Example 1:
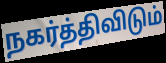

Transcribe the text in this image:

நகர்த்திவிடும்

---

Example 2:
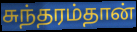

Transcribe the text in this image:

சுந்தரம்தான்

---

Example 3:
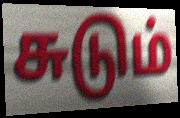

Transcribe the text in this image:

சுடும்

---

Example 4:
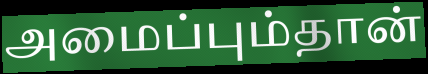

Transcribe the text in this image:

அமைப்பும்தான்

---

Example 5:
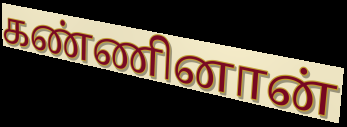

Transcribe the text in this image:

கண்ணினான்